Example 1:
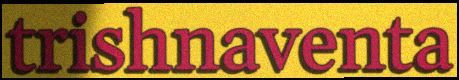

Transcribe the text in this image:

trishnaventa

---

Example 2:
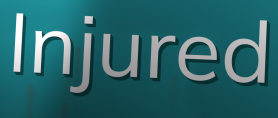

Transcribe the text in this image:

Injured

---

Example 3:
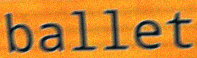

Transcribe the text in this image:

ballet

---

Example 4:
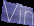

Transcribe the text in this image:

Vin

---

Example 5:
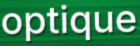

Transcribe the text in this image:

optique